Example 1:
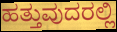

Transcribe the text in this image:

ಹತ್ತುವುದರಲ್ಲಿ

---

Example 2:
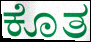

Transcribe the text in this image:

ಕೊತ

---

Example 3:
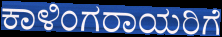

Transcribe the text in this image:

ಕಾಳಿಂಗರಾಯರಿಗೆ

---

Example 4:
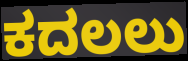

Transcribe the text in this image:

ಕದಲಲು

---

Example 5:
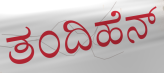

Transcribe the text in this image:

ತಂದಿಹೆನ್